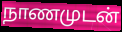
நாணமுடன்